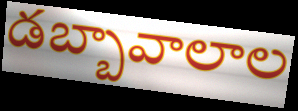
డబ్బావాలాల